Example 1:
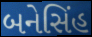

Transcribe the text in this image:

બનેસિંહ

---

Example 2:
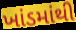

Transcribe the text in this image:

ખાંડમાંથી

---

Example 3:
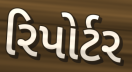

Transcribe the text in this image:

રિપોર્ટર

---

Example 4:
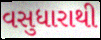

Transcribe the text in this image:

વસુધારાથી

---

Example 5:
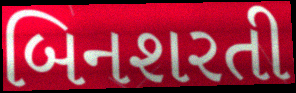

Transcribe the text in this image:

બિનશરતી